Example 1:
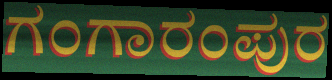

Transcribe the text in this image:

ಗಂಗಾರಂಪುರ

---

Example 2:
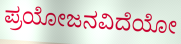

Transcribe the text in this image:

ಪ್ರಯೋಜನವಿದೆಯೋ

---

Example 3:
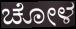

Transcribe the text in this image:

ಚೋಳ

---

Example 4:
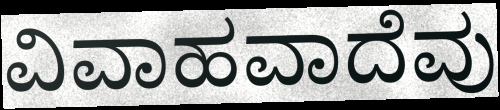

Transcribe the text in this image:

ವಿವಾಹವಾದೆವು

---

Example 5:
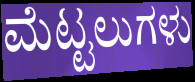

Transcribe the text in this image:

ಮೆಟ್ಟಲುಗಳು